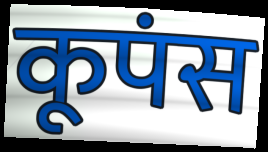
कूपंस